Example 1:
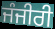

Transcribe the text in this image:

ਜੰਜੀਰੀ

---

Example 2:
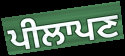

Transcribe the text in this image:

ਪੀਲਾਪਣ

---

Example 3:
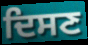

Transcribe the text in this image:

ਦਿਸਣ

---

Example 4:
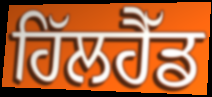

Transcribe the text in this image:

ਹਿੱਲਹੈੱਡ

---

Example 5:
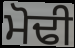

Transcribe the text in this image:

ਮੋਢੀ